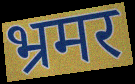
भ्रमर